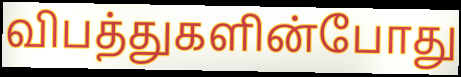
விபத்துகளின்போது